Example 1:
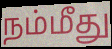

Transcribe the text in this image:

நம்மீது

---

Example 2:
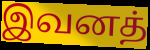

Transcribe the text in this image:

இவனத்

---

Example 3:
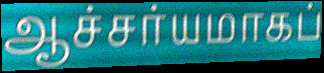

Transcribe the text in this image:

ஆச்சர்யமாகப்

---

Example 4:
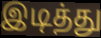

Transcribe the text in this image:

இடித்து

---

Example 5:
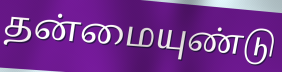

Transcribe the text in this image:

தன்மையுண்டு